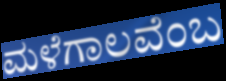
ಮಳೆಗಾಲವೆಂಬ